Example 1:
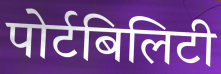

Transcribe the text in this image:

पोर्टबिलिटी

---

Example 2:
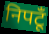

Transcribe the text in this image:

निपटूँ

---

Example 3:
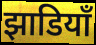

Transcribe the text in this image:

झाडियाँ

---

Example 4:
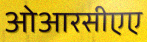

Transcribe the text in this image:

ओआरसीएए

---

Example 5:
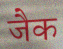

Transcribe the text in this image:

जैक